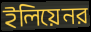
ইলিয়েনর